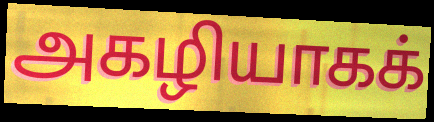
அகழியாகக்